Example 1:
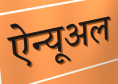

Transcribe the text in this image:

ऐन्यूअल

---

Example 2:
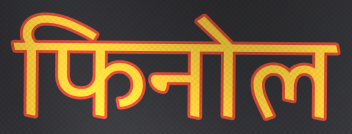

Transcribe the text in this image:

फिनोल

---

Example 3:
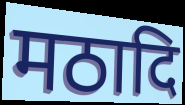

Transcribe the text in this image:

मठादि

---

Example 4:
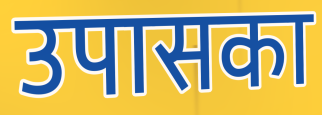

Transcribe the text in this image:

उपासका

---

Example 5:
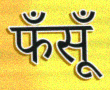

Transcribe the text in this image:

फँसूँ